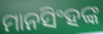
ମାନସିଂହଙ୍କ